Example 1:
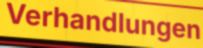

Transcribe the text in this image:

Verhandlungen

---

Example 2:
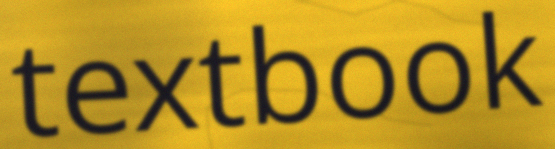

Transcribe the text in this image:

textbook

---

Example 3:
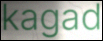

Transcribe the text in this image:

kagad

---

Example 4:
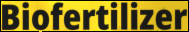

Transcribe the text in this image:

Biofertilizer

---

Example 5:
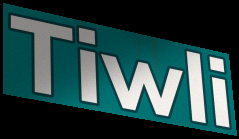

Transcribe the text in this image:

Tiwli